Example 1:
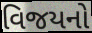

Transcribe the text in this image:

વિજયનો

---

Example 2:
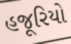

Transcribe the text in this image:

હજૂરિયો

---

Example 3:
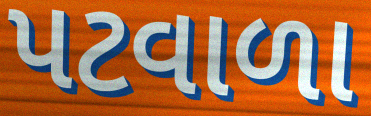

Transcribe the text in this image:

પટવાળા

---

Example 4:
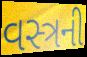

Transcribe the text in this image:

વસ્ત્રની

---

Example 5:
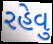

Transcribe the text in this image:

રહેવુ